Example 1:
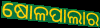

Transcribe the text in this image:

ଷୋଳପାଲାର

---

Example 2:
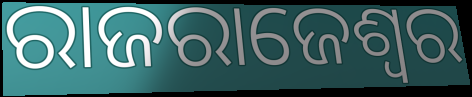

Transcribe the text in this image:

ରାଜରାଜେଶ୍ଵର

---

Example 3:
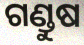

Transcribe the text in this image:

ଗଣ୍ଡୁଷ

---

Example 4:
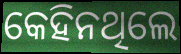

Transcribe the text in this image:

କେହିନଥିଲେ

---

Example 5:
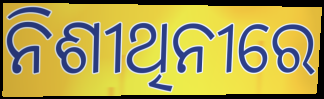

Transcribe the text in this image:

ନିଶୀଥିନୀରେ